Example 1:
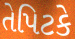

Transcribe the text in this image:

તેપિટકે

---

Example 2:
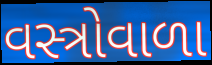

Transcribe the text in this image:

વસ્ત્રોવાળા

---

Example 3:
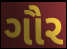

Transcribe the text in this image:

ગૌર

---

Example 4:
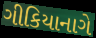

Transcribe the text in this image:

ગીકિયાનાગે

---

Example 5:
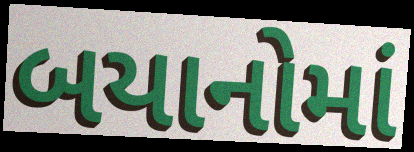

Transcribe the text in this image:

બયાનોમાં